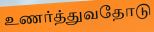
உணர்த்துவதோடு